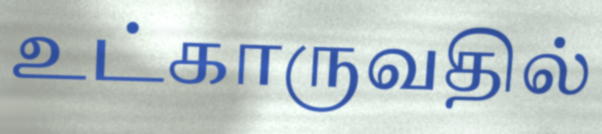
உட்காருவதில்